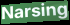
Narsing